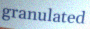
granulated